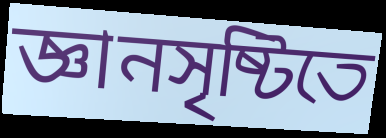
জ্ঞানসৃষ্টিতে